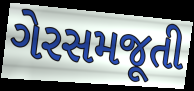
ગેરસમજૂતી